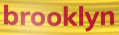
brooklyn